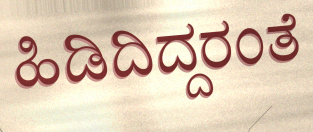
ಹಿಡಿದಿದ್ದರಂತೆ